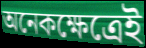
অনেকক্ষেত্রেই